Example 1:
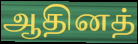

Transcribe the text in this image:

ஆதினத்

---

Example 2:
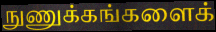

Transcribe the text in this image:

நுணுக்கங்களைக்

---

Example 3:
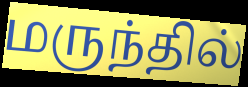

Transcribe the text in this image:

மருந்தில்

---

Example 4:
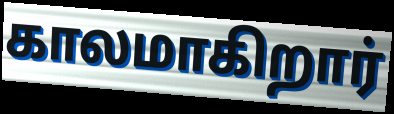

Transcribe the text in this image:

காலமாகிறார்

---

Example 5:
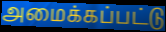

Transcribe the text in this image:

அமைக்கப்பட்டு